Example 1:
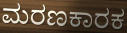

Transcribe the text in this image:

ಮರಣಕಾರಕ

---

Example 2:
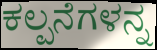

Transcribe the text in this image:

ಕಲ್ಪನೆಗಳನ್ನ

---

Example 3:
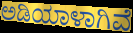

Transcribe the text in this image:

ಅಡಿಯಾಳಾಗಿವೆ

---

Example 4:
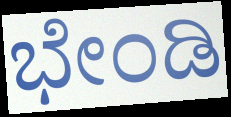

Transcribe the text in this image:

ಭೇಂಡಿ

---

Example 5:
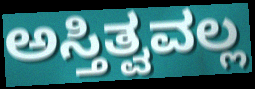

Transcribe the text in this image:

ಅಸ್ತಿತ್ವವಲ್ಲ